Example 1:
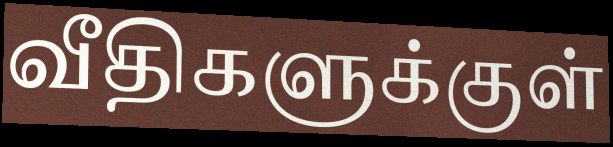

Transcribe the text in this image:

வீதிகளுக்குள்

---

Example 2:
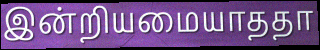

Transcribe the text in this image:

இன்றியமையாததா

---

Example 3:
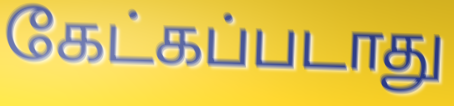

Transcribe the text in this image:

கேட்கப்படாது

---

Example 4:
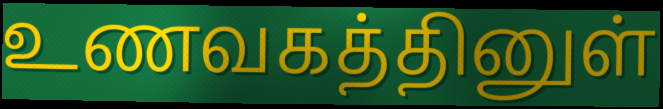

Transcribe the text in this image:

உணவகத்தினுள்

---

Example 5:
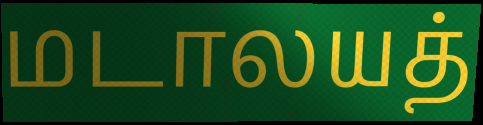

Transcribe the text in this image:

மடாலயத்